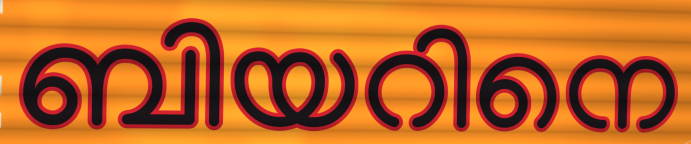
ബിയറിനെ